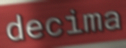
decima